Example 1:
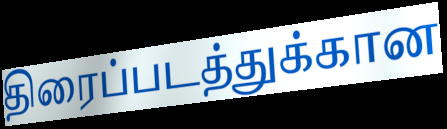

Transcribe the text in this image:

திரைப்படத்துக்கான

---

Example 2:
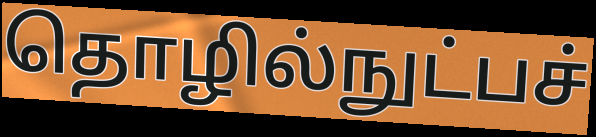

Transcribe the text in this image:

தொழில்நுட்பச்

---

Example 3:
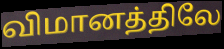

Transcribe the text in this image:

விமானத்திலே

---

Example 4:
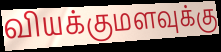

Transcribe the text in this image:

வியக்குமளவுக்கு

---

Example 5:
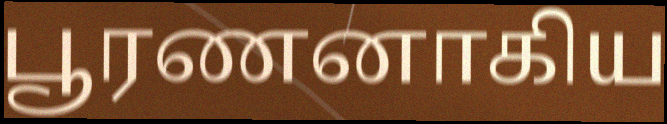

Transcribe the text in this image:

பூரணனாகிய